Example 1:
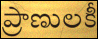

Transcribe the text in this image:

ప్రాణులకీ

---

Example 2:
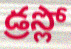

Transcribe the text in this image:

డ్రస్లో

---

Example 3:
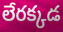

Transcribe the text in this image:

లేరక్కడ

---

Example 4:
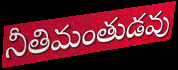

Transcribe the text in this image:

నీతిమంతుడవు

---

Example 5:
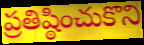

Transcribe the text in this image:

ప్రతిష్ఠించుకొని